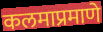
कलमाप्रमाणे